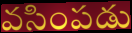
వసింపడు